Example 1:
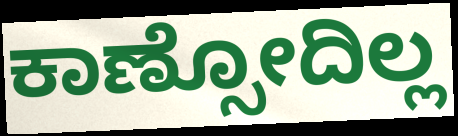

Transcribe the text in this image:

ಕಾಣ್ಸೋದಿಲ್ಲ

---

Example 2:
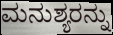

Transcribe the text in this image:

ಮನುಶ್ಯರನ್ನು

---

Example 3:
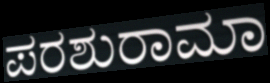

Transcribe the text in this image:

ಪರಶುರಾಮಾ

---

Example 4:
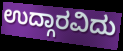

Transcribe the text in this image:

ಉದ್ಗಾರವಿದು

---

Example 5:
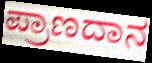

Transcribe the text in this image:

ಪ್ರಾಣದಾನ